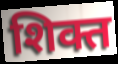
शिक्त